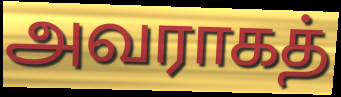
அவராகத்